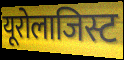
यूरोलाजिस्ट